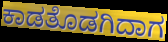
ಕಾಡತೊಡಗಿದಾಗ